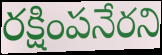
రక్షింపనేరని